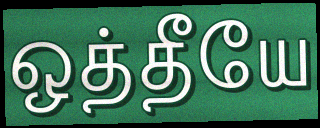
ஒத்தீயே